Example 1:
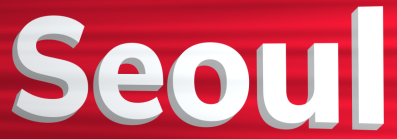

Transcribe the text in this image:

Seoul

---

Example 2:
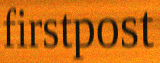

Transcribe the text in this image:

firstpost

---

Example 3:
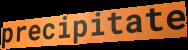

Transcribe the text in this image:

precipitate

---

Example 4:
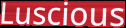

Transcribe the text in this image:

Luscious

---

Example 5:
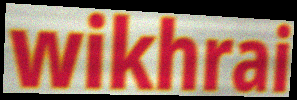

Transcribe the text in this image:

wikhrai